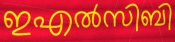
ഇഎൽസിബി